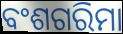
ବଂଶଗରିମା